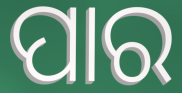
ପାର